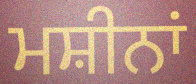
ਮਸ਼ੀਨਾਂ